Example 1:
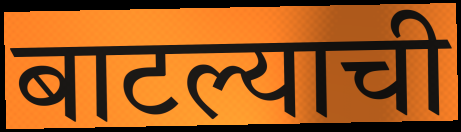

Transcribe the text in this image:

बाटल्याची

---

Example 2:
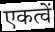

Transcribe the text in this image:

एकत्वें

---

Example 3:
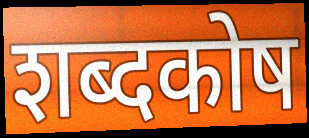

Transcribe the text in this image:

शब्दकोष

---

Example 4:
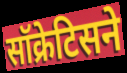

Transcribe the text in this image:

सॉक्रेटिसने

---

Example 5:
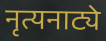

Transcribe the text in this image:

नृत्यनाट्ये